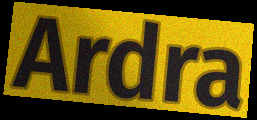
Ardra